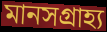
মানসগ্রাহ্য